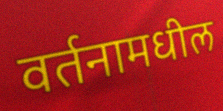
वर्तनामधील